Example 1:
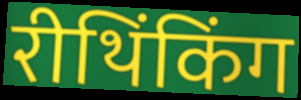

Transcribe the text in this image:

रीथिंकिंग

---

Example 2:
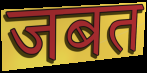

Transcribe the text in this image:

जबत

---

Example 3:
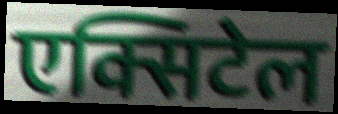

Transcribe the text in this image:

एक्सिटेल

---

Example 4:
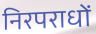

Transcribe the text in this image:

निरपराधों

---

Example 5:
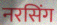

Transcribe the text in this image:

नरसिंग